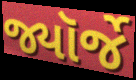
જ્યૉર્જે